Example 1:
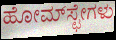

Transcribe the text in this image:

ಹೋಮ್‌ಸ್ಟೇಗಳು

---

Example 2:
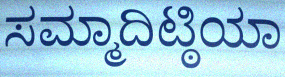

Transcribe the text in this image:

ಸಮ್ಮಾದಿಟ್ಠಿಯಾ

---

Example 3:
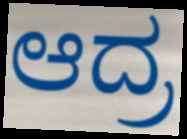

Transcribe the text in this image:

ಆದ್ರ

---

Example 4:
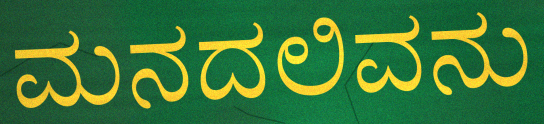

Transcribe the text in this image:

ಮನದಲಿವನು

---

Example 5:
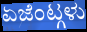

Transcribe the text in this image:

ಏಜೆಂಟ್ಗಳು